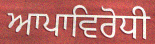
ਆਪਾਵਿਰੋਧੀ